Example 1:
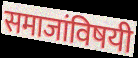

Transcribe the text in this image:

समाजांविषयी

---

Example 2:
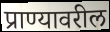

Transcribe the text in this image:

प्राण्यावरील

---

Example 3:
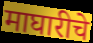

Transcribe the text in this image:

माघारीचे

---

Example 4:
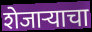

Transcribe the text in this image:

शेजार्‍याचा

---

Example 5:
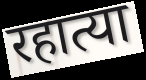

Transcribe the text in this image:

रहात्या